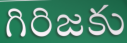
గిరిజకు